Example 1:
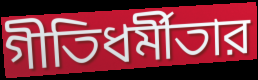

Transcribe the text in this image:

গীতিধর্মীতার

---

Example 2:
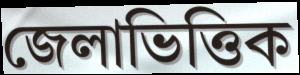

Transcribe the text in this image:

জেলাভিত্তিক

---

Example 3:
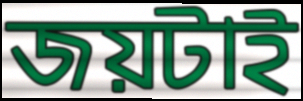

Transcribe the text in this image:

জয়টাই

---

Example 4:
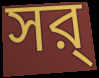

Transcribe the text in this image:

সর্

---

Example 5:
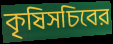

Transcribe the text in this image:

কৃষিসচিবের